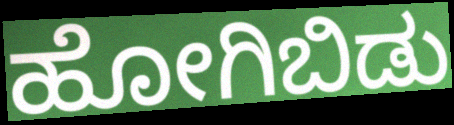
ಹೋಗಿಬಿಡು